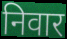
निवार